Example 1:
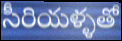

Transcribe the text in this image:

సీరియళ్ళతో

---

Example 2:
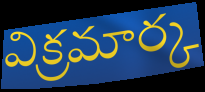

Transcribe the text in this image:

విక్రమార్క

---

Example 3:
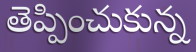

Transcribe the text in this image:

తెప్పించుకున్న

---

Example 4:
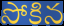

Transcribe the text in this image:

సోకిన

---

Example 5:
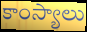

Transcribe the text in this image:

కాంస్యాలు